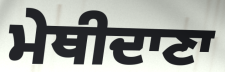
ਮੇਥੀਦਾਣਾ